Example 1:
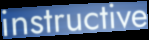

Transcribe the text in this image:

instructive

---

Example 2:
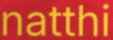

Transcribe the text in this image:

natthi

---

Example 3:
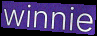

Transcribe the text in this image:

winnie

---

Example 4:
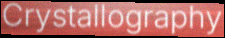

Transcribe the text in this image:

Crystallography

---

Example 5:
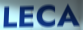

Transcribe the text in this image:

LECA